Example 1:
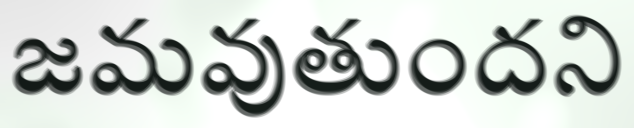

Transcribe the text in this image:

జమవుతుందని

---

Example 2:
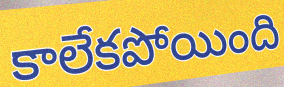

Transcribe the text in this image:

కాలేకపోయింది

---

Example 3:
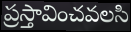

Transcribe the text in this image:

ప్రస్తావించవలసి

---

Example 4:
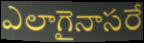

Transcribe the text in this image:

ఎలాగైనాసరే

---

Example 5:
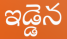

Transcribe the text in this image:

ఇడ్డెన